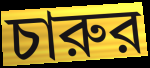
চারুর